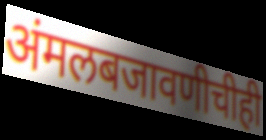
अंमलबजावणीचीही